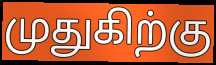
முதுகிற்கு